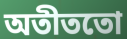
অতীততো